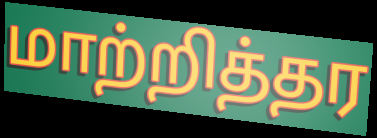
மாற்றித்தர